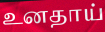
உனதாய்